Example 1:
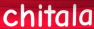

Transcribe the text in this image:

chitala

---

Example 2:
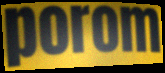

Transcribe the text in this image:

porom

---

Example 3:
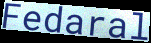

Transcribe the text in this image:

Fedaral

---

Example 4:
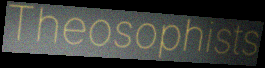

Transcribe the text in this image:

Theosophists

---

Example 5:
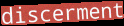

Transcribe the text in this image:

discerment